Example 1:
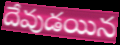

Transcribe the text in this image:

దేవుడయిన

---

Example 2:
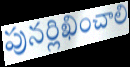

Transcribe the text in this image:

పునర్లిఖించాలి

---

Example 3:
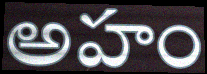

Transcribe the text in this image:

అహం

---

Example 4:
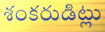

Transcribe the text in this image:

శంకరుడిట్లు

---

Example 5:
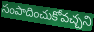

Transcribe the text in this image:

సంపాదించుకోవచ్చని